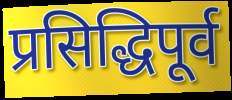
प्रसिद्धिपूर्व